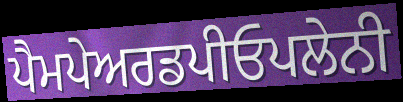
ਪੈਮਪੇਅਰਡਪੀਓਪਲੇਨੀ